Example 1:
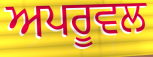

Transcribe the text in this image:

ਅਪਰੂਵਲ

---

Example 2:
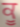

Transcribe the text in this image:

ਕੂ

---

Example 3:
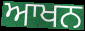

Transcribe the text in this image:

ਆਖਨ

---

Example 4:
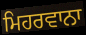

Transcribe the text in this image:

ਮਿਹਰਵਾਨਾ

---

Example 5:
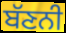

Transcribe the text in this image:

ਬੱਣਨੀ